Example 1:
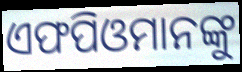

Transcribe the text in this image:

ଏଫପିଓମାନଙ୍କୁ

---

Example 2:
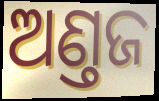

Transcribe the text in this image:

ଅଣ୍ତଜ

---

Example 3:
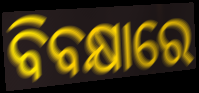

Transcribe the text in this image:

ବିବକ୍ଷାରେ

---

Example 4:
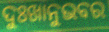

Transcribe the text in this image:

ଦୁଃଖାନୁଭବର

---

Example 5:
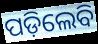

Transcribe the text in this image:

ପଡ଼ିଲେବି